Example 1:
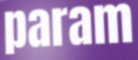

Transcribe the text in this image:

param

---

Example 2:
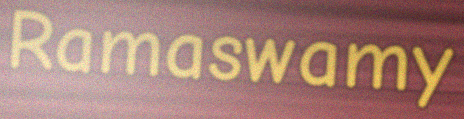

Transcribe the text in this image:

Ramaswamy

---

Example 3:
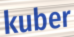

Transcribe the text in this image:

kuber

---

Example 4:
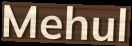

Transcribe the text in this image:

Mehul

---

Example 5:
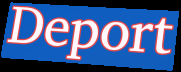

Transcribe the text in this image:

Deport